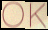
OK